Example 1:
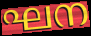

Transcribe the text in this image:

ഘന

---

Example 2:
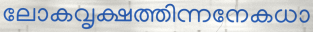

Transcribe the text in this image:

ലോകവൃക്ഷത്തിന്നനേകധാ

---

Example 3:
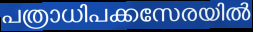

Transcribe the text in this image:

പത്രാധിപക്കസേരയിൽ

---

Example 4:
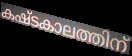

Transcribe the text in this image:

കഷ്ടകാലത്തിന്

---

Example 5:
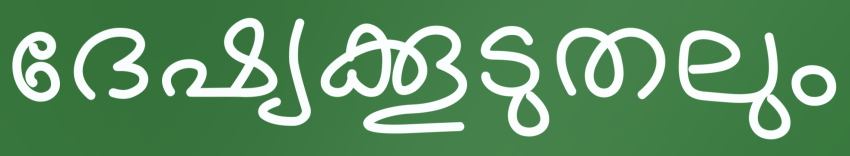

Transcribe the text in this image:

ദേഷ്യക്കൂടുതലും